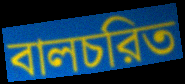
বালচরিত